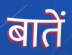
बातें